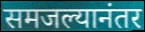
समजल्यानंतर